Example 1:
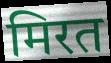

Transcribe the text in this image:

मिरत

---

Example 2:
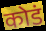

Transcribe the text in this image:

कोडं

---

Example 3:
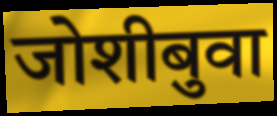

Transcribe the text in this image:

जोशीबुवा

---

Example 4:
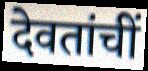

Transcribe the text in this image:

देवतांचीं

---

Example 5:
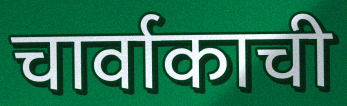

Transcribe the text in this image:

चार्वाकाची